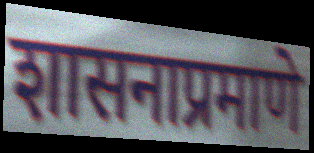
शासनाप्रमाणे